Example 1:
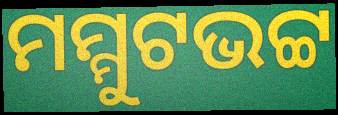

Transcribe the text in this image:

ମମ୍ମୁଟଭଟ୍ଟ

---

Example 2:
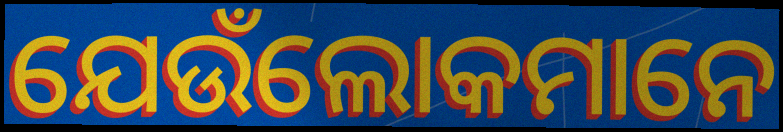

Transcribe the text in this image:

ଯେଉଁଲୋକମାନେ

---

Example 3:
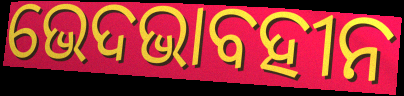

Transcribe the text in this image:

ଭେଦଭାବହୀନ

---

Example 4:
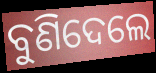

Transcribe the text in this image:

ବୁଣିଦେଲେ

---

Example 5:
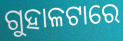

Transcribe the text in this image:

ଗୁହାଳଟାରେ